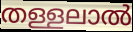
തള്ളലാൽ